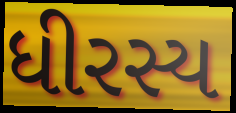
ધીરસ્ય